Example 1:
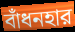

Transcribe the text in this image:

বাঁধনহার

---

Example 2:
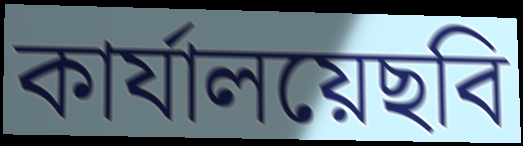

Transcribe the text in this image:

কার্যালয়েছবি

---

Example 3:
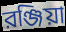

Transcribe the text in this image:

রঞ্জিয়া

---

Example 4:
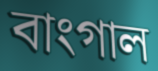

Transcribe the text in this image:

বাংগাল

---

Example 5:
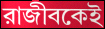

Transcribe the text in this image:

রাজীবকেই